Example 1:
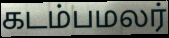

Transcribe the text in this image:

கடம்பமலர்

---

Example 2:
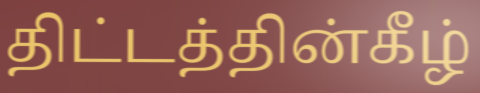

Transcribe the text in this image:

திட்டத்தின்கீழ்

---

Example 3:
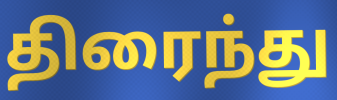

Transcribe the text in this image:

திரைந்து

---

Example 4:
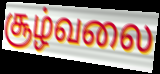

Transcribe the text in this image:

சூழ்வலை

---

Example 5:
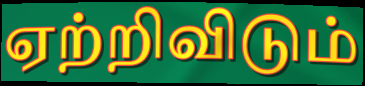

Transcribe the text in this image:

ஏற்றிவிடும்